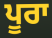
ਪੂਰਾ